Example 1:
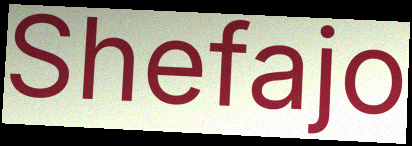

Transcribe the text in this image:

Shefajo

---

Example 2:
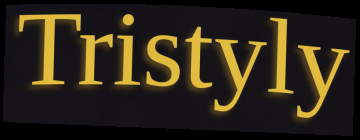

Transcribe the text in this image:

Tristyly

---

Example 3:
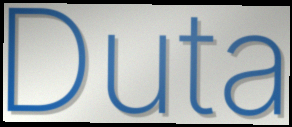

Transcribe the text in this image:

Duta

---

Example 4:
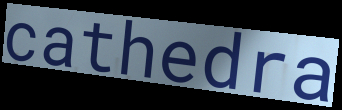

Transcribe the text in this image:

cathedra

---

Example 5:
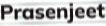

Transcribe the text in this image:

Prasenjeet